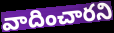
వాదించారని